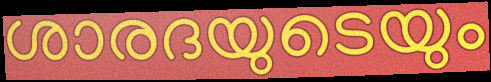
ശാരദയുടെയും